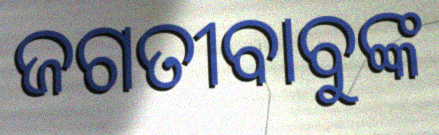
ଜଗତୀବାବୁଙ୍କ